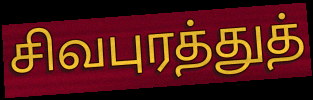
சிவபுரத்துத்